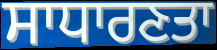
ਸਾਧਾਰਣਤਾ